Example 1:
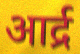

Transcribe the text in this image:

आर्द्र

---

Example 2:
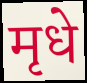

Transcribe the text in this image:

मृधे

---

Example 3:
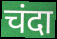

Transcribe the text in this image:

चंदा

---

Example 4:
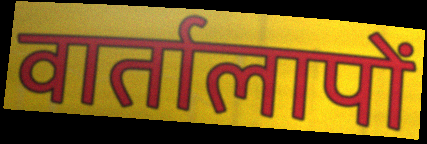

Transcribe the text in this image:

वार्तालापों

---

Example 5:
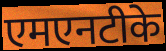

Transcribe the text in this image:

एमएनटीके